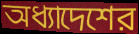
অধ্যাদেশের